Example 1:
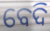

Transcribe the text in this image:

ବେଦି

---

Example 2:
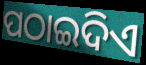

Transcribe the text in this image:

ପଠାଇଦିଏ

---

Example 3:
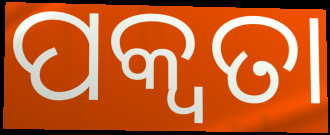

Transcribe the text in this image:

ପକ୍ୱତା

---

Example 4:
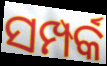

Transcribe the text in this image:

ସମ୍ପର୍କ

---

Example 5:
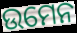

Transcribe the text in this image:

ଉମେନ